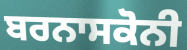
ਬਰਨਾਸਕੋਨੀ